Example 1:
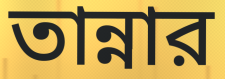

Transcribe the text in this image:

তান্নার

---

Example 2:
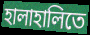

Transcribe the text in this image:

হালাহালিতে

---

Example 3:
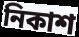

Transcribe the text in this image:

নিকাশ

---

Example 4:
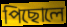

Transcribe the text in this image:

পিছোলে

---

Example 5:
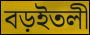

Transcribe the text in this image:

বড়ইতলী